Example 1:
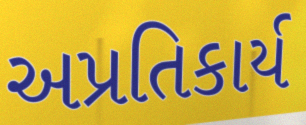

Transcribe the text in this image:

અપ્રતિકાર્ય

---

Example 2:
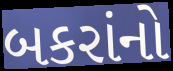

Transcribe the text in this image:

બકરાંનો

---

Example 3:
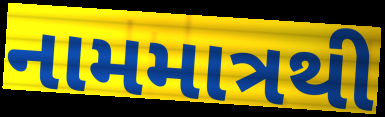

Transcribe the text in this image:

નામમાત્રથી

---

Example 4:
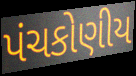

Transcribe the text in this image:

પંચકોણીય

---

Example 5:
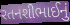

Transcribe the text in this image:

રતનશીભાઈનું